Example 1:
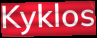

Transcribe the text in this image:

Kyklos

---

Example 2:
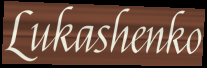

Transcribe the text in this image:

Lukashenko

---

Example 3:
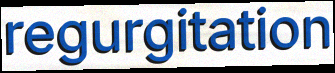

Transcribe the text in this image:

regurgitation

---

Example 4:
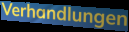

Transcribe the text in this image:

Verhandlungen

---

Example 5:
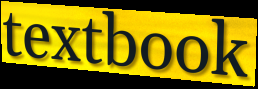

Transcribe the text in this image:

textbook